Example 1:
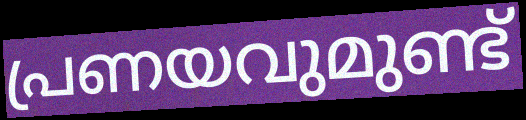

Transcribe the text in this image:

പ്രണയവുമുണ്ട്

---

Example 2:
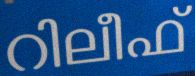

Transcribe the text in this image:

റിലീഫ്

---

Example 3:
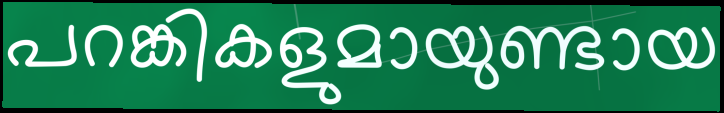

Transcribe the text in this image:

പറങ്കികളുമായുണ്ടായ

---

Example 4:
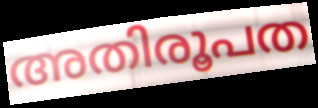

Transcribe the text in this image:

അതിരൂപത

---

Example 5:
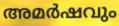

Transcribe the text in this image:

അമർഷവും